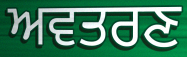
ਅਵਤਰਣ